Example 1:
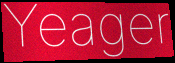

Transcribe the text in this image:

Yeager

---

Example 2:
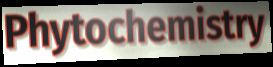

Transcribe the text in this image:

Phytochemistry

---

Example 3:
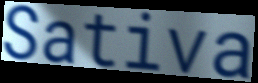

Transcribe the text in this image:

Sativa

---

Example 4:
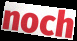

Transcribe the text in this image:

noch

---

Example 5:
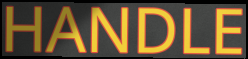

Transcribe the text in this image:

HANDLE